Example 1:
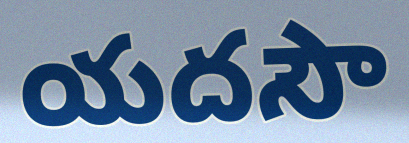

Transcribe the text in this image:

యదసౌ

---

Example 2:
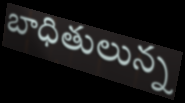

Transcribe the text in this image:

బాధితులున్న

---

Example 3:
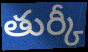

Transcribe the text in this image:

తుర్కీ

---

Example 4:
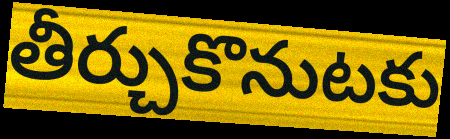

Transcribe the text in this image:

తీర్చుకొనుటకు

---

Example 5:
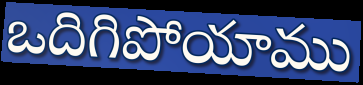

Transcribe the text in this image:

ఒదిగిపోయాము